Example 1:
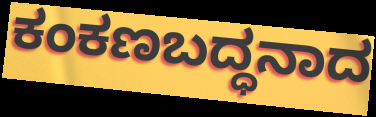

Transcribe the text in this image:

ಕಂಕಣಬದ್ಧನಾದ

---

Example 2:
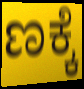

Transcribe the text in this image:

ಣಕ್ಕೆ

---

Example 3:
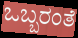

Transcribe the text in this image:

ಒಬ್ಬರಂತೆ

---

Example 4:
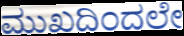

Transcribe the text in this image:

ಮುಖದಿಂದಲೇ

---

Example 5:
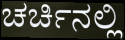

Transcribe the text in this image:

ಚರ್ಚಿನಲ್ಲಿ